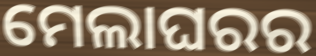
ମେଲାଘରର